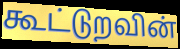
கூட்டுறவின்